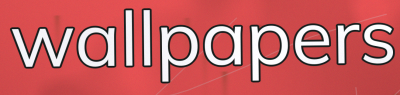
wallpapers